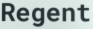
Regent